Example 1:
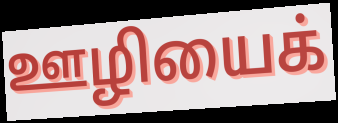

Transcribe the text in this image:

ஊழியைக்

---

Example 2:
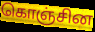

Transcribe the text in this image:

கொஞ்சின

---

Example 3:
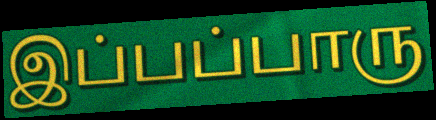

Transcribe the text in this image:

இப்பப்பாரு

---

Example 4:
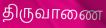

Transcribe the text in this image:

திருவாணை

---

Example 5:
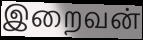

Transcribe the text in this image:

இறைவன்